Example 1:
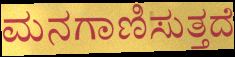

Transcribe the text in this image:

ಮನಗಾಣಿಸುತ್ತದೆ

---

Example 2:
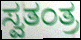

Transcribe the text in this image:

ಸ್ವತಂತ್ರ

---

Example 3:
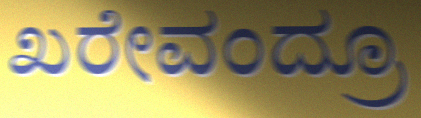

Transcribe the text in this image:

ಖರೇವಂದ್ರೂ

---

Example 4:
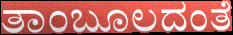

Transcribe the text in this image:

ತಾಂಬೂಲದಂತೆ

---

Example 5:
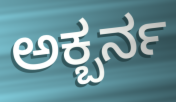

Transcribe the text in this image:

ಅಕ್ಬರ್ನ